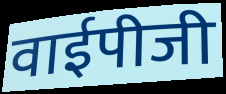
वाईपीजी